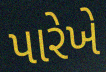
પારેખે